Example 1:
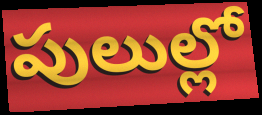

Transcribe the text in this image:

పులుల్లో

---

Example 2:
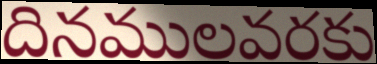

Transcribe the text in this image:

దినములవరకు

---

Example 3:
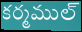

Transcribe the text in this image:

కర్మముల్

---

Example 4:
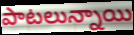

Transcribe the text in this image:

పాటలున్నాయి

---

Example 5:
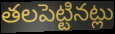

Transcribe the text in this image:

తలపెట్టినట్లు